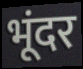
भूंदर